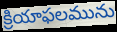
క్రియాఫలమును